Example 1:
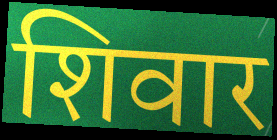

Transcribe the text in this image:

शिवार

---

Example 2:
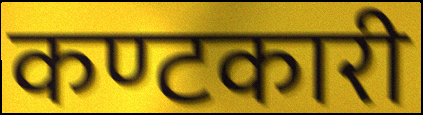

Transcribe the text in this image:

कण्टकारी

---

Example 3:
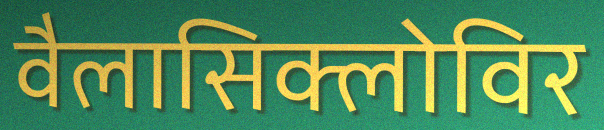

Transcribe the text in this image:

वैलासिक्लोविर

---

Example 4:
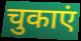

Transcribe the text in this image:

चुकाएं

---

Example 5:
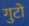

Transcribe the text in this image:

गुटो